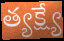
త్యక్ష్యే